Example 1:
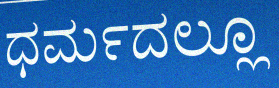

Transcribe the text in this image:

ಧರ್ಮದಲ್ಲೂ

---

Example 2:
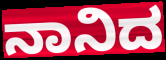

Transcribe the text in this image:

ನಾನಿದ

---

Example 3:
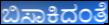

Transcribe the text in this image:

ಬಿಸಾಕಿದಂತೆ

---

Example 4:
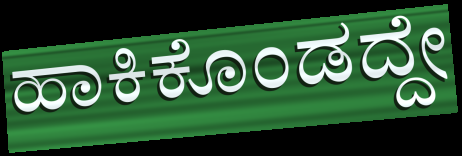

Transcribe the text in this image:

ಹಾಕಿಕೊಂಡದ್ದೇ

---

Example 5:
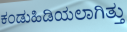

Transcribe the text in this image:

ಕಂಡುಹಿಡಿಯಲಾಗಿತ್ತು